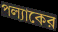
পল্যাকের